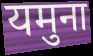
यमुना